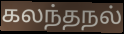
கலந்தநல்